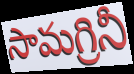
సామగ్రినీ